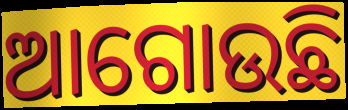
ଆଗୋଉଛି